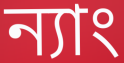
ন্যাং